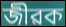
জীৱক